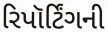
રિપૉર્ટિંગની